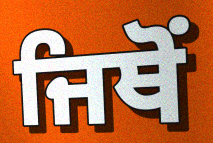
ਜਿਥੋਂ